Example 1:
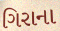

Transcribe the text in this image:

ગિરાના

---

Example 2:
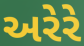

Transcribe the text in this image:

અરેરે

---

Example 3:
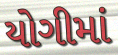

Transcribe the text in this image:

યોગીમાં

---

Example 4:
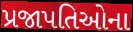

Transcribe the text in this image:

પ્રજાપતિઓના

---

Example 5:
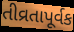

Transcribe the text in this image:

તીવ્રતાપૂર્વક